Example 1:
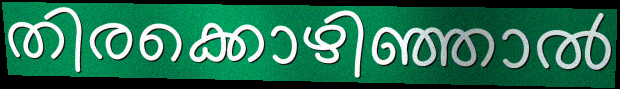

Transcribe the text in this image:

തിരക്കൊഴിഞ്ഞാൽ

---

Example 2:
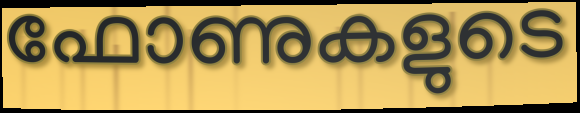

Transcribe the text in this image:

ഫോണുകളുടെ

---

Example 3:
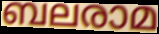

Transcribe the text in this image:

ബലരാമ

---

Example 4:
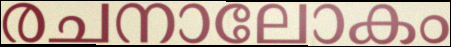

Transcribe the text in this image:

രചനാലോകം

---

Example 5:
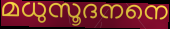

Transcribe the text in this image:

മധുസൂദനനെ